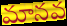
మానవ